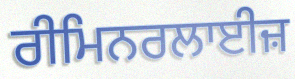
ਰੀਮਿਨਰਲਾਈਜ਼